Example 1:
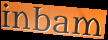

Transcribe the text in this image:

inbam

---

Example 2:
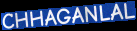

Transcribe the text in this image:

CHHAGANLAL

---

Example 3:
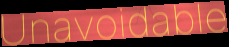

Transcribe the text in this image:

Unavoidable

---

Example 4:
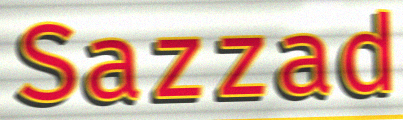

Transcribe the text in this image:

Sazzad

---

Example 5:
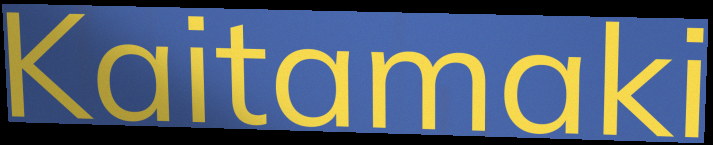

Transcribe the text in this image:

Kaitamaki